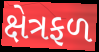
ક્ષેત્રફળ